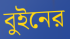
বুইনের